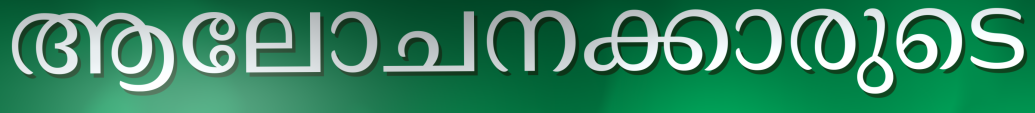
ആലോചനക്കാരുടെ